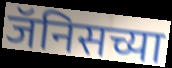
जॅनिसच्या